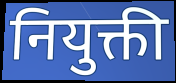
नियुक्ती